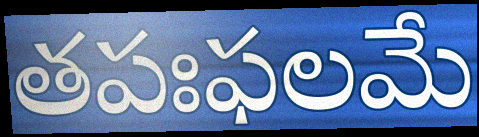
తపఃఫలమే